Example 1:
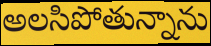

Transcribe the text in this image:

అలసిపోతున్నాను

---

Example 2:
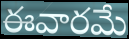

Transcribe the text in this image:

ఈవారమే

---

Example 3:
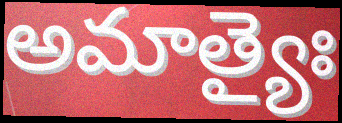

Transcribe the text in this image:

అమాత్యైః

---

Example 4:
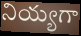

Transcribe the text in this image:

నియ్యగా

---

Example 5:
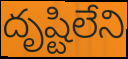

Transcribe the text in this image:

దృష్టిలేని